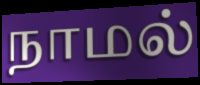
நாமல்